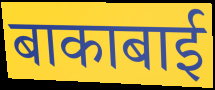
बाकाबाई